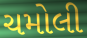
ચમોલી